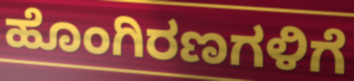
ಹೊಂಗಿರಣಗಳಿಗೆ